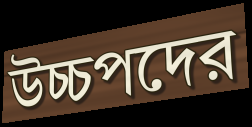
উচ্চপদের